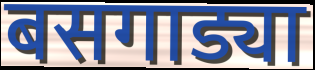
बसगाड्या